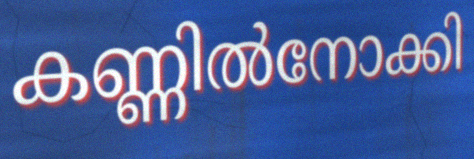
കണ്ണിൽനോക്കി